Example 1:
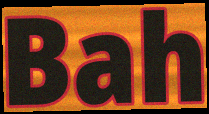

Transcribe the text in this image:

Bah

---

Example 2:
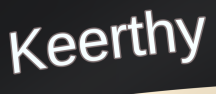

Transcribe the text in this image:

Keerthy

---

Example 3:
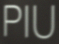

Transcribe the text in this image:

PIU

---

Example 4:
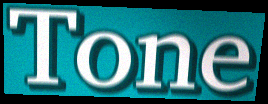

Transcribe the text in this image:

Tone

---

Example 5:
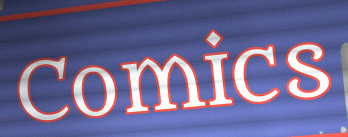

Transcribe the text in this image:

Comics